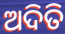
ଅଦିତି